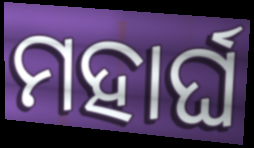
ମହାର୍ଘ